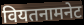
वियतनामनेट